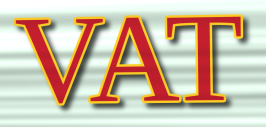
VAT